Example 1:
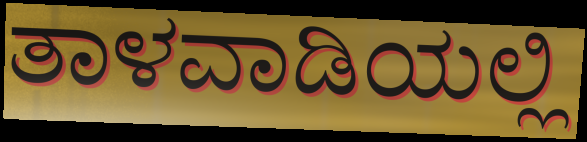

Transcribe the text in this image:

ತಾಳವಾಡಿಯಲ್ಲಿ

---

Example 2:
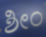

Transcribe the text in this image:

ಶೀಂ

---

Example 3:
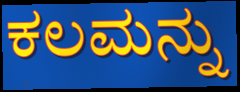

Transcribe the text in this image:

ಕಲಮನ್ನು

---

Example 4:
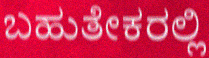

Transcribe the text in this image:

ಬಹುತೇಕರಲ್ಲಿ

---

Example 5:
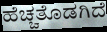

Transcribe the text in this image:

ಹೆಚ್ಚತೊಡಗಿದೆ